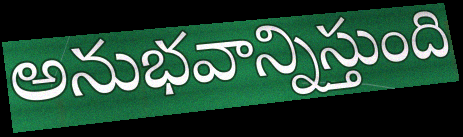
అనుభవాన్నిస్తుంది